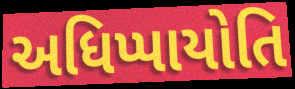
અધિપ્પાયોતિ